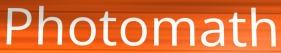
Photomath